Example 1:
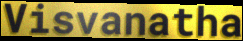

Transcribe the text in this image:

Visvanatha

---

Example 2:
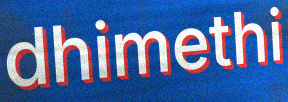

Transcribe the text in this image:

dhimethi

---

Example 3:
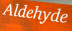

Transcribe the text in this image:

Aldehyde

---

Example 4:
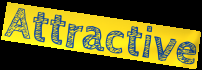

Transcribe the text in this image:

Attractive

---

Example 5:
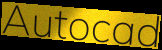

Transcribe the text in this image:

Autocad